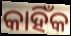
କାହିଁକ